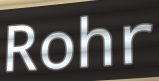
Rohr